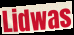
Lidwas